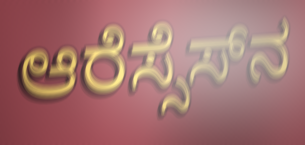
ಆರೆಸ್ಸೆಸ್‌ನ